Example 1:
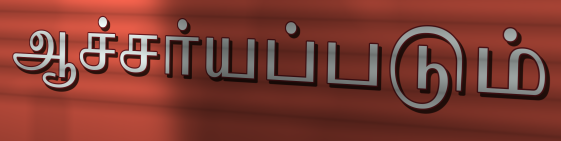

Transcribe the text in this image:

ஆச்சர்யப்படும்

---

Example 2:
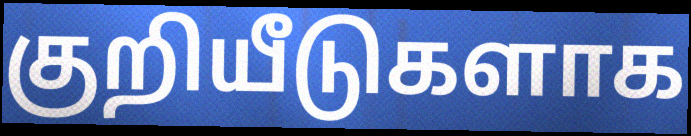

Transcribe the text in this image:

குறியீடுகளாக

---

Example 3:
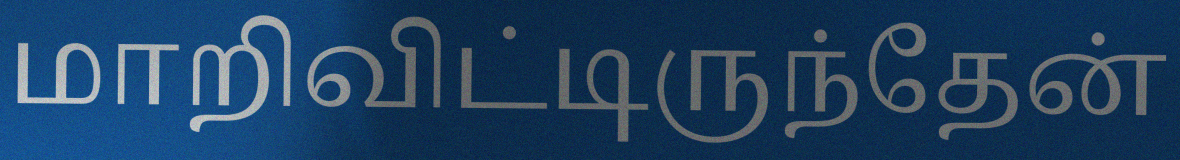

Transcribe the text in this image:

மாறிவிட்டிருந்தேன்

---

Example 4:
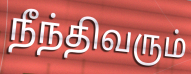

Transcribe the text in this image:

நீந்திவரும்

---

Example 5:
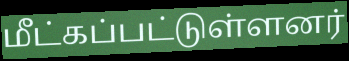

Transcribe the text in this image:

மீட்கப்பட்டுள்ளனர்